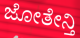
ಜೋತೇನ್ತಿ